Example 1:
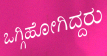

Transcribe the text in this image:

ಒಗ್ಗಿಹೋಗಿದ್ದರು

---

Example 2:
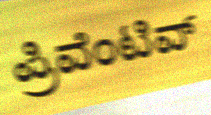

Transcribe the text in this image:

ಪ್ರಿವೆಂಟಿವ್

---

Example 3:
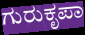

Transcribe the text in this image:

ಗುರುಕೃಪಾ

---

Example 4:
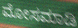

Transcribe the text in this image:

ಮೋಸಮಾಡಿ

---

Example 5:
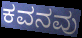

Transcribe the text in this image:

ಕವನವು